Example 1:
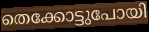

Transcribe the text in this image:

തെക്കോട്ടുപോയി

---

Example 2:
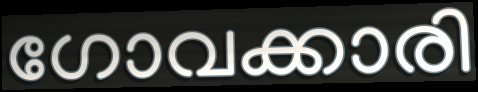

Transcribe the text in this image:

ഗോവക്കാരി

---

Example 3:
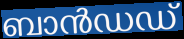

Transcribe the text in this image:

ബാൻഡഡ്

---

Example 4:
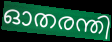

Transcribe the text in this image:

ഓതരന്തി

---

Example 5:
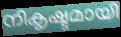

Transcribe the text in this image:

നികൃഷ്ടമായി